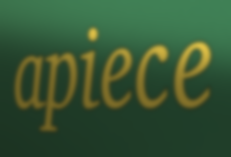
apiece